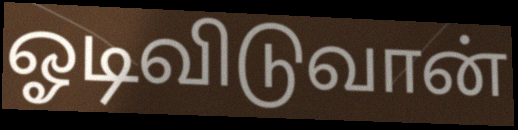
ஓடிவிடுவான்